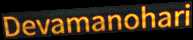
Devamanohari